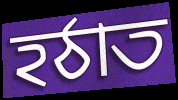
হঠাত